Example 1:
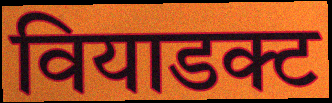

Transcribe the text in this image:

वियाडक्ट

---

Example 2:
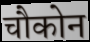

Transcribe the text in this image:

चौकोन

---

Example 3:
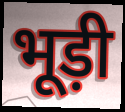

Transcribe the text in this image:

भूड़ी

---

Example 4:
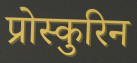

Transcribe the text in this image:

प्रोस्कुरिन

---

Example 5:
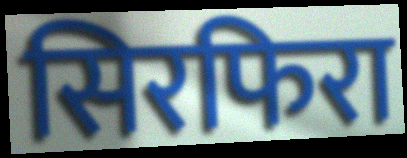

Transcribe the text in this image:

सिरफिरा